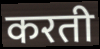
करती